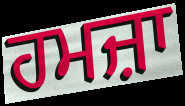
ਹਮਜ਼ਾ